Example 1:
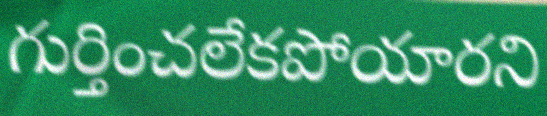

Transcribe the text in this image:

గుర్తించలేకపోయారని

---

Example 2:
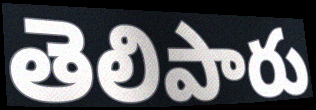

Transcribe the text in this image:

తెలిపారు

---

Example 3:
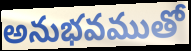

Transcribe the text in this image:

అనుభవముతో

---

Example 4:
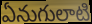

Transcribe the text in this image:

ఏనుగులాటి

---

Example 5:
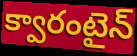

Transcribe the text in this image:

క్వారంటైన్